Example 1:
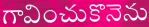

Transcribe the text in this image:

గావించుకొనెను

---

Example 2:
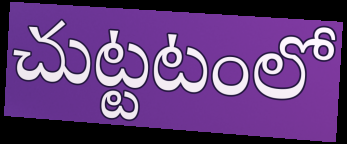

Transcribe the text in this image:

చుట్టటంలో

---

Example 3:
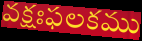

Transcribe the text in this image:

వక్షఃఫలకము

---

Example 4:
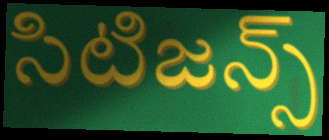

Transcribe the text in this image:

సిటిజన్స్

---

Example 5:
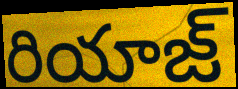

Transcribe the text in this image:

రియాజ్